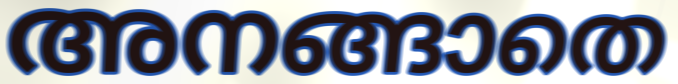
അനങ്ങാതെ